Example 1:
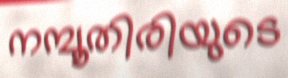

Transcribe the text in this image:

നമ്പൂതിരിയുടെ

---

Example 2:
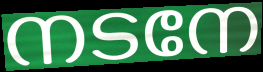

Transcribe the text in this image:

നടനേ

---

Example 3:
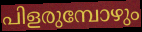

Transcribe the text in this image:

പിളരുമ്പോഴും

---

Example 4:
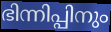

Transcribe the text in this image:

ഭിന്നിപ്പിനും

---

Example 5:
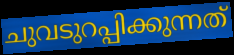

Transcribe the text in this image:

ചുവടുറപ്പിക്കുന്നത്